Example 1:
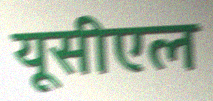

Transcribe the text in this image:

यूसीएल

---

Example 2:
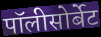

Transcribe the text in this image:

पॉलीसोर्बेट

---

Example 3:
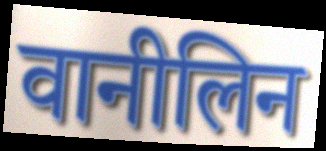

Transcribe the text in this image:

वानीलिन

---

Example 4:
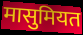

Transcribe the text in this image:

मासुमियत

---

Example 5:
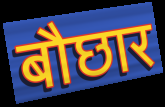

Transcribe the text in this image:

बौछार